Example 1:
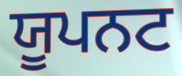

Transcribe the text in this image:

ਯੂਪਨਟ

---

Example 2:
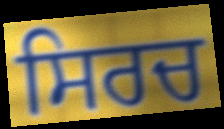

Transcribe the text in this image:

ਸਿਰਚ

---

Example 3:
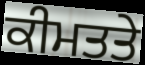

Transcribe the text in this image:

ਕੀਮਤਤੇ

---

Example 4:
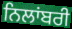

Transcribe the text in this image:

ਨਿਲਾਂਬਰੀ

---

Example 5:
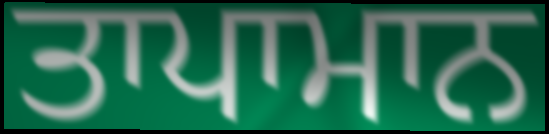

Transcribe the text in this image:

ਤਾਪਾਮਾਨ